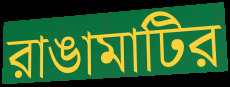
রাঙামাটির